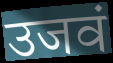
उजवं